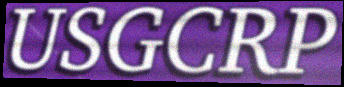
USGCRP